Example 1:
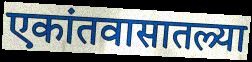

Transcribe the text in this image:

एकांतवासातल्या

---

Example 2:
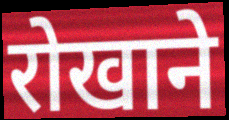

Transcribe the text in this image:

रोखाने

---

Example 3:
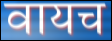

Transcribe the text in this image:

वायच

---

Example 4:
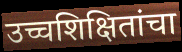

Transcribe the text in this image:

उच्चशिक्षितांचा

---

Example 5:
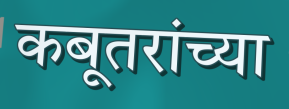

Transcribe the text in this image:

कबूतरांच्या